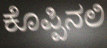
ಕೊಪ್ಪಿನಲಿ